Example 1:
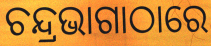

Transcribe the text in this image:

ଚନ୍ଦ୍ରଭାଗାଠାରେ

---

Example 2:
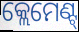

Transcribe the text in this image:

କ୍ଲେମେଣ୍ଟ୍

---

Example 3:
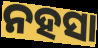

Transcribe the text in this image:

ନହସା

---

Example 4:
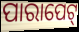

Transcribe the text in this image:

ପାରାପେଟ୍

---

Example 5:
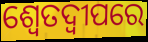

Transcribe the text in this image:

ଶ୍ୱେତଦ୍ୱୀପରେ